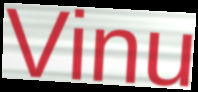
Vinu